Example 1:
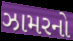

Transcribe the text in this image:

ઝામરનો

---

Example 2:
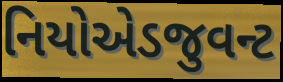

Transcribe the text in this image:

નિયોએડજુવન્ટ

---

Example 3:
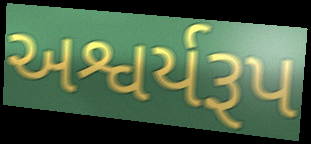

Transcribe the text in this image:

અશ્વર્યરૂપ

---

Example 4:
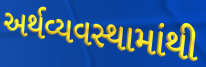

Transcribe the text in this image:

અર્થવ્યવસ્થામાંથી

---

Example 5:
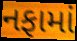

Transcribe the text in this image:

નફામાં